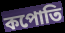
কপোতি